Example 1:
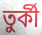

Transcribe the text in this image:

তুৰ্কী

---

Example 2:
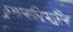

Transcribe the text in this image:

চুপাৰচিমেট্ৰীৰ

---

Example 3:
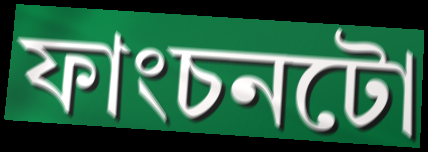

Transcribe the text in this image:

ফাংচনটো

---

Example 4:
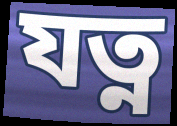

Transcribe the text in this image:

যত্ন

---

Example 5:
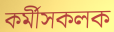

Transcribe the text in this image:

কৰ্মীসকলক